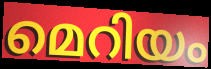
മെറിയം